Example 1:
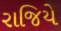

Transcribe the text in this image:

રાજિયે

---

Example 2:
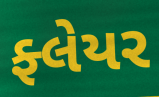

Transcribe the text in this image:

ફ્લેયર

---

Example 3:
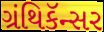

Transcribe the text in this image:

ગ્રંથિકૅન્સર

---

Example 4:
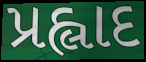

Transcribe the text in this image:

પ્રહ્લાદ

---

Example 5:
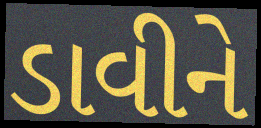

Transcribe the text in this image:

ડાવીને